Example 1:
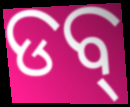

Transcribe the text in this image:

ଡବ୍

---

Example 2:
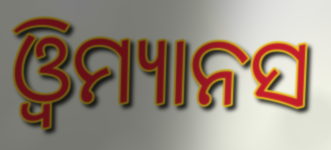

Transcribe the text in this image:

ଓ୍ବିମ୍ୟାନସ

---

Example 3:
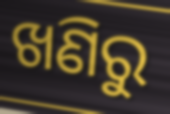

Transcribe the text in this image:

ଖଣିରୁ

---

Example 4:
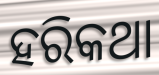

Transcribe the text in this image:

ହରିକଥା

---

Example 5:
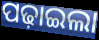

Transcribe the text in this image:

ପଢ଼ାଇଲା